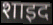
शाइद